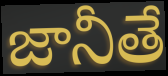
జానీతే